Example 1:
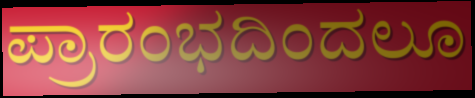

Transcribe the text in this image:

ಪ್ರಾರಂಭದಿಂದಲೂ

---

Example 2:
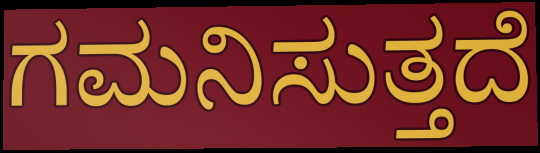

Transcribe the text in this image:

ಗಮನಿಸುತ್ತದೆ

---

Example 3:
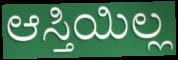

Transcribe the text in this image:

ಆಸ್ತಿಯಿಲ್ಲ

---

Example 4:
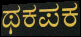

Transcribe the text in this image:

ಥಕಪಕ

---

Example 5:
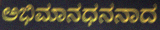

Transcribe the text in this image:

ಅಭಿಮಾನಧನನಾದ